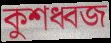
কুশধ্বজ